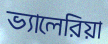
ভ্যালেরিয়া